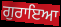
ਗੁਰਾਇਆ